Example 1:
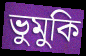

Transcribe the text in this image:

ভুমুকি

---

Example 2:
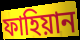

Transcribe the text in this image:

ফাহিয়ান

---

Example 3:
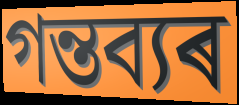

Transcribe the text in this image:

গন্তব্যৰ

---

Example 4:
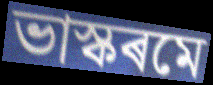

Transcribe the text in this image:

ভাস্কৰমে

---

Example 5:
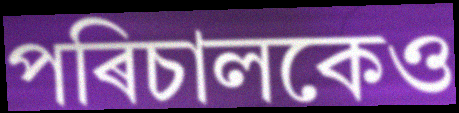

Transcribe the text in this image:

পৰিচালকেও